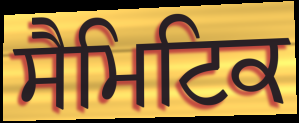
ਸੈਮਿਟਿਕ